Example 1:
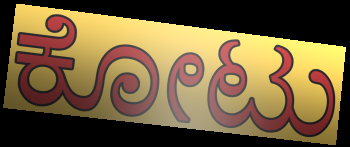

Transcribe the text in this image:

ಕೋಟು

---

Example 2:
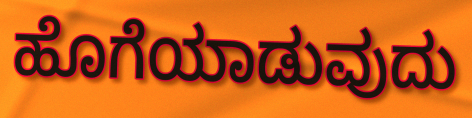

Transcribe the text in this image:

ಹೊಗೆಯಾಡುವುದು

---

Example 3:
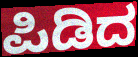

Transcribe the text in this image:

ಪಿಡಿದ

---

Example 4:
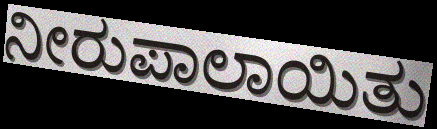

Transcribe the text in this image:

ನೀರುಪಾಲಾಯಿತು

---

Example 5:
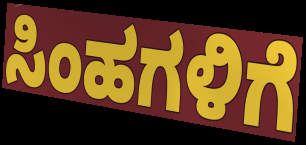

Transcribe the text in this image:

ಸಿಂಹಗಳಿಗೆ